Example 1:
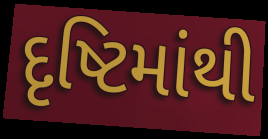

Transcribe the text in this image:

દૃષ્ટિમાંથી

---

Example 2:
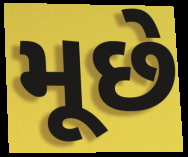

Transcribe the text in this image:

મૂછે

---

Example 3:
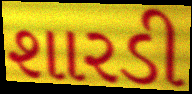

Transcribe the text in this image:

શારડી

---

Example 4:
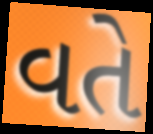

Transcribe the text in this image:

વતે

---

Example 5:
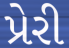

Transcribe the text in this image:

પ્રેરી